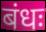
बंधः